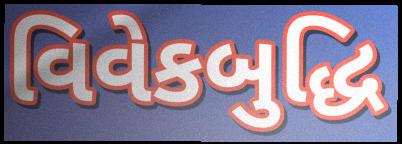
વિવેકબુદ્ધિ